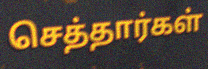
செத்தார்கள்